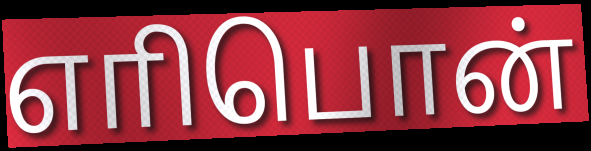
எரிபொன்